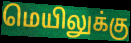
மெயிலுக்கு